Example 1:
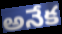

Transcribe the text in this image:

అనేక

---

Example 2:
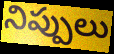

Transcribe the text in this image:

నిప్పులు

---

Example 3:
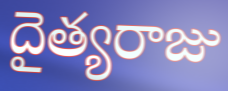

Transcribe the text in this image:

దైత్యరాజు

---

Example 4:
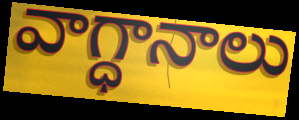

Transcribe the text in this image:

వాగ్ధానాలు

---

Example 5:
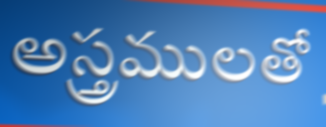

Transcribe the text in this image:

అస్త్రములతో